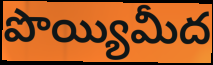
పొయ్యిమీద